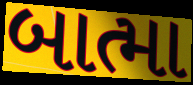
બાત્મા